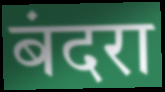
बंदरा